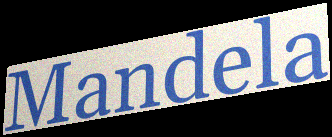
Mandela